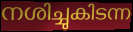
നശിച്ചുകിടന്ന